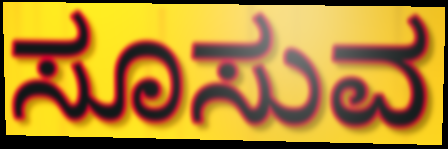
ಸೂಸುವ